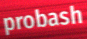
probash